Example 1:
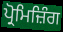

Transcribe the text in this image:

ਪ੍ਰੋਮਿਜ਼ਿੰਗ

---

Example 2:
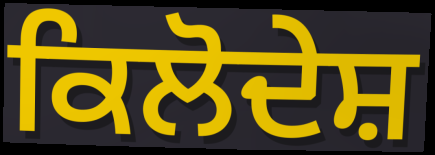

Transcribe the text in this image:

ਕਿਲੋਦੇਸ਼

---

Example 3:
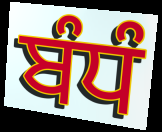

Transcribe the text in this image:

ਬੰਧੰ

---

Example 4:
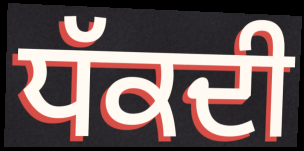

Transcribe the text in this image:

ਧੱਕਦੀ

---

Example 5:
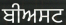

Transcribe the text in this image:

ਬੀਅਸਟ